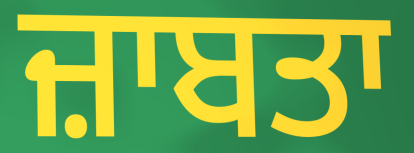
ਜ਼ਾਬਤਾ